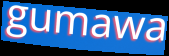
gumawa